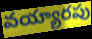
వయ్యారపు